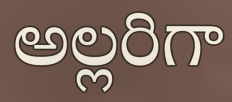
అల్లరిగా